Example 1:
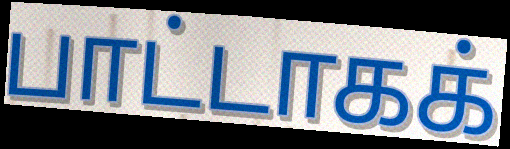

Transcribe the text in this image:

பாட்டாகக்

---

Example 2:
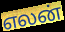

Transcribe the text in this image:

எலன்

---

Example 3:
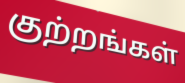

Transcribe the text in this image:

குற்றங்கள்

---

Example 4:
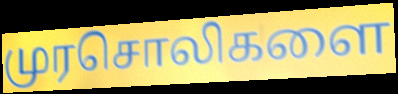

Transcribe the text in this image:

முரசொலிகளை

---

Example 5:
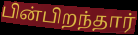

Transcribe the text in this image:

பின்பிறந்தார்